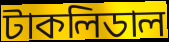
টাকলিডাল